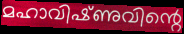
മഹാവിഷ്‌ണുവിന്റെ